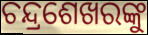
ଚନ୍ଦ୍ରଶେଖରଙ୍କୁ